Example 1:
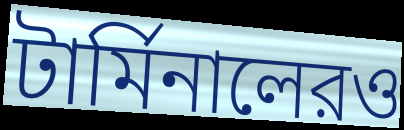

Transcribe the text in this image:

টার্মিনালেরও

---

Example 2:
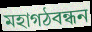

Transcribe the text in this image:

মহাগঠবন্ধন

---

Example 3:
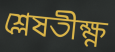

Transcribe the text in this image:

শ্লেষতীক্ষ্ণ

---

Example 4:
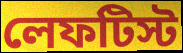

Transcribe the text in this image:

লেফটিস্ট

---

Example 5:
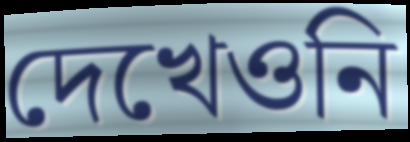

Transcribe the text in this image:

দেখেওনি